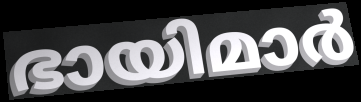
ഭായിമാർ